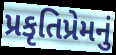
પ્રકૃતિપ્રેમનું